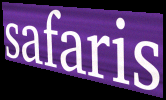
safaris